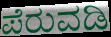
ಪೆರುವಡಿ